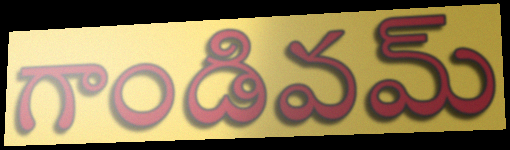
గాండివమ్